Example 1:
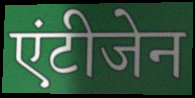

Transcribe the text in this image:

एंटीजेन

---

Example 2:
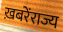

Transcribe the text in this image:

ख़बरेंराज्य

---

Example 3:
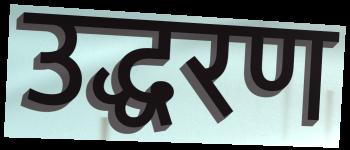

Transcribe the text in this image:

उद्धरण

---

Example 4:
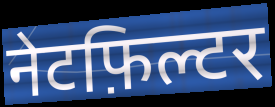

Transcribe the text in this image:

नेटफ़िल्टर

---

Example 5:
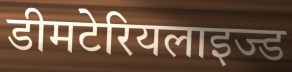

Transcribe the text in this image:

डीमटेरियलाइज्ड